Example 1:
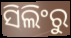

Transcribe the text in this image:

ସିଲିଂରୁ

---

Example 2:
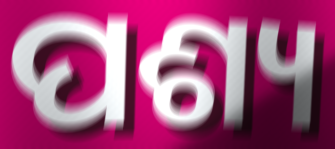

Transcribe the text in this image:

ପଶ୍ୟ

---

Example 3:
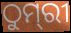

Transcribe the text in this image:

ଠୁମ୍‌ରୀ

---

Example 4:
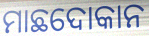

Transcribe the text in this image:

ମାଛଦୋକାନ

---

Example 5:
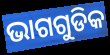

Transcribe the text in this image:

ଭାଗଗୁଡିକ